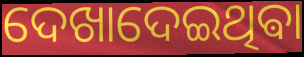
ଦେଖାଦେଇଥିଵା